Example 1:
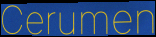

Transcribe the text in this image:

Cerumen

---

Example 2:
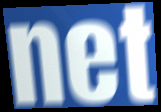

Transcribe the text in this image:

net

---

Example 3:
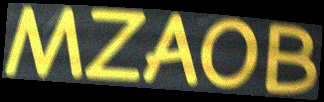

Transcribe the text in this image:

MZAOB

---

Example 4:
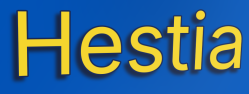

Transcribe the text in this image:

Hestia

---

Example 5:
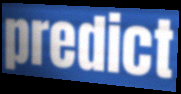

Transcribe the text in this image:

predict